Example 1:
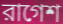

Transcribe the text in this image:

রাগেশ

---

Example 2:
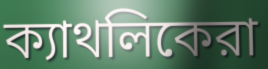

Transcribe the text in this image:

ক্যাথলিকেরা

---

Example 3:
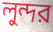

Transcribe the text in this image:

লুন্দর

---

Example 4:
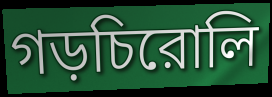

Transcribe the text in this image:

গড়চিরোলি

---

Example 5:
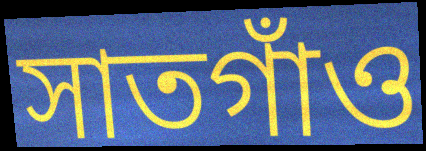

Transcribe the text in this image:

সাতগাঁও